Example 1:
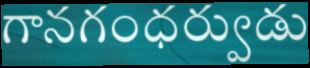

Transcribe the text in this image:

గానగంధర్వుడు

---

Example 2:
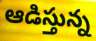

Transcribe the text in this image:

ఆడిస్తున్న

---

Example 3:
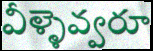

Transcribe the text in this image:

వీళ్ళెవ్వరూ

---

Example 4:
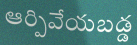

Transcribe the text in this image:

ఆర్పివేయబడ్డ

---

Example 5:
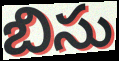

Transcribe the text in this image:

బిసు